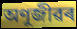
অণুজীৱৰ